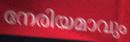
നേരിയമാവും